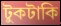
টুকটাকি